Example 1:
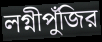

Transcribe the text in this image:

লগ্নীপুঁজির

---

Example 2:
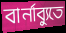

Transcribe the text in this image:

বার্নাব্যুতে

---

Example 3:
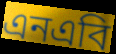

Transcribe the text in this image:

এনএবি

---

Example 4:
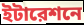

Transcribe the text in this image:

ইটারেশনে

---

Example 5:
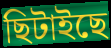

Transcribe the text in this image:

ছিটাইছে